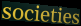
societies